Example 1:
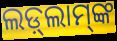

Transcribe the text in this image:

ଲଡ଼୍‍ଲାମ୍‍ଙ୍କ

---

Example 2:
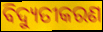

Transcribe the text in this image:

ବିଦ୍ୟୁତୀକରଣ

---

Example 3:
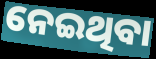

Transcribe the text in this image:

ନେଇଥିବା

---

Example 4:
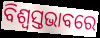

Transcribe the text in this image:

ବିଶ୍ୱସ୍ତଭାବରେ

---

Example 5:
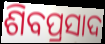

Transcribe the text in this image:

ଶିବପ୍ରସାଦ